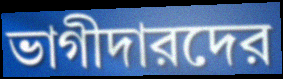
ভাগীদারদের